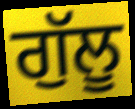
ਗੁੱਲੂ